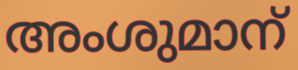
അംശുമാന്